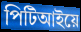
পিটিআইয়ে